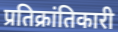
प्रतिक्रांतिकारी